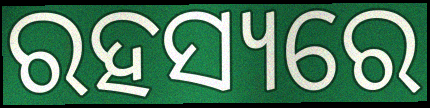
ରହସ୍ୟରେ